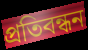
প্ৰতিবন্ধন